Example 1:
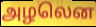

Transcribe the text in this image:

அழலென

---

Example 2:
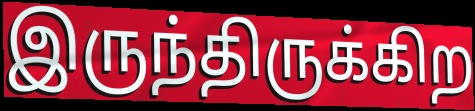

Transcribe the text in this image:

இருந்திருக்கிற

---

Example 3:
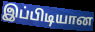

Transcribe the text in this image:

இப்பிடியான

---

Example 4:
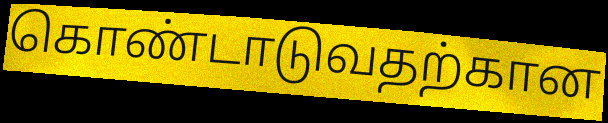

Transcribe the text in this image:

கொண்டாடுவதற்கான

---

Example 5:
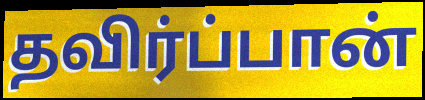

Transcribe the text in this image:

தவிர்ப்பான்